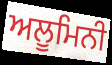
ਅਲੂਮਿਨੀ